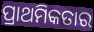
ପ୍ରାଥମିକତାର